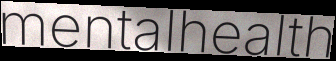
mentalhealth